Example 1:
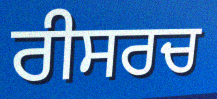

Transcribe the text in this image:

ਰੀਸਰਚ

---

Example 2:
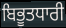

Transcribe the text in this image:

ਬਿਭੂਤਧਾਰੀ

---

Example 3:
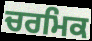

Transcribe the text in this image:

ਚਰਮਿਕ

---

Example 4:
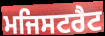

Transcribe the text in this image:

ਮਜਿਸਟਰੈਟ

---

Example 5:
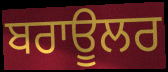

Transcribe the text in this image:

ਬਰਾਊਲਰ